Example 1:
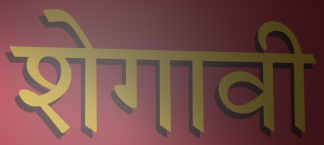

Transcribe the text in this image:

शेगावी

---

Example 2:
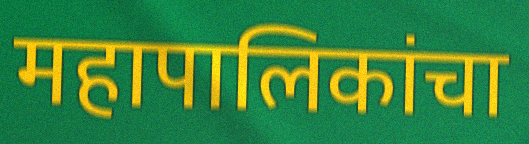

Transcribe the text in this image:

महापालिकांचा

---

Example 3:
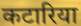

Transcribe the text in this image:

कटारिया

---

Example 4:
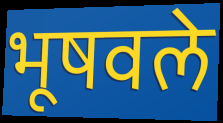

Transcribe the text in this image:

भूषवले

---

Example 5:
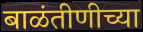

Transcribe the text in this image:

बाळंतीणीच्या